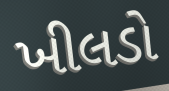
ખીલડો